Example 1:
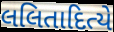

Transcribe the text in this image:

લલિતાદિત્યે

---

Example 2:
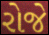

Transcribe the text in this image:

રોજે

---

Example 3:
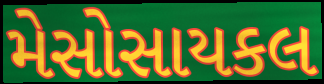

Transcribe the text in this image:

મેસોસાયકલ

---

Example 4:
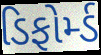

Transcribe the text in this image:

ડિફોર્મ્ડ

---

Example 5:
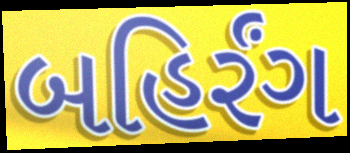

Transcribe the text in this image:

બહિર્રંગ